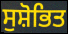
ਸੁਸ਼ੋਭਿਤ